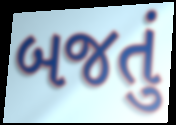
બજતું